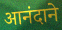
आनंदाने